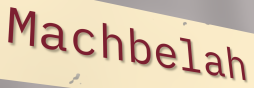
Machbelah